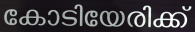
കോടിയേരിക്ക്